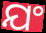
ଯଂ